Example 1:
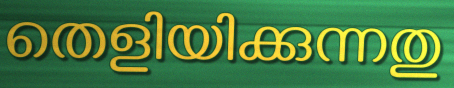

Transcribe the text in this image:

തെളിയിക്കുന്നതു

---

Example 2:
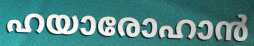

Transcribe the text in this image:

ഹയാരോഹാൻ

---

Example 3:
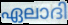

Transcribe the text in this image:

ഏലാദി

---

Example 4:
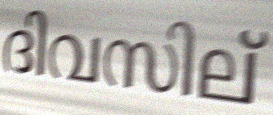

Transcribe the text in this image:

ദിവസില്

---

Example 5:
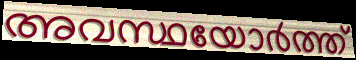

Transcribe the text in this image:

അവസ്ഥയോർത്ത്